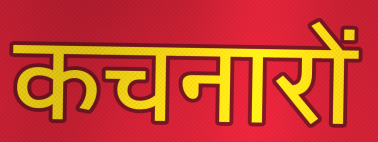
कचनारों